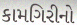
કામગિરીનો